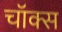
चॉक्स